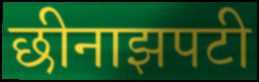
छीनाझपटी